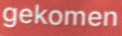
gekomen